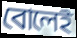
বোলেই